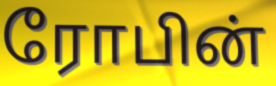
ரோபின்